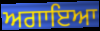
ਅਗਾਇਆ